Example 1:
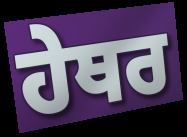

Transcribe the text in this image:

ਹੇਥਰ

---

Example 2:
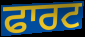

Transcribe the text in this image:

ਫਾਰਟ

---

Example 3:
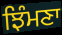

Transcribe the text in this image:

ਝਿੰਮਣਾ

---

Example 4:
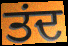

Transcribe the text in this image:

ਤਂਦ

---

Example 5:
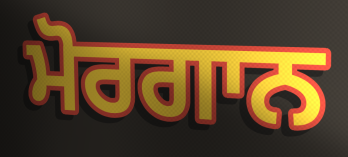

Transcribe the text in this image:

ਮੋਰਗਾਨ